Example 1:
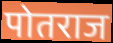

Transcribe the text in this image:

पोतराज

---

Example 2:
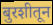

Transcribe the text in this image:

बुरशीतून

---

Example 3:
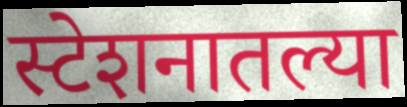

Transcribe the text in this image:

स्टेशनातल्या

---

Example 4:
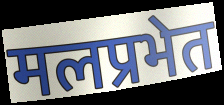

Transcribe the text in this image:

मलप्रभेत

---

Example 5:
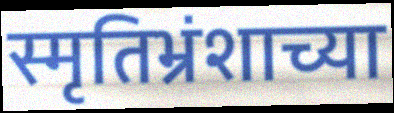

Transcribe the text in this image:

स्मृतिभ्रंशाच्या